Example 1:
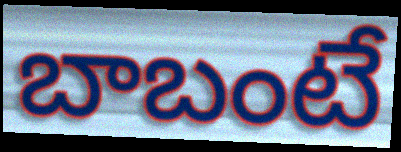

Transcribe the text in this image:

బాబంటే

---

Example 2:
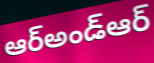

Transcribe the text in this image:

ఆర్అండ్ఆర్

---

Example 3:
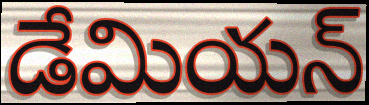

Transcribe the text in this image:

డేమియన్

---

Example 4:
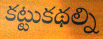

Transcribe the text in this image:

కట్టుకథల్ని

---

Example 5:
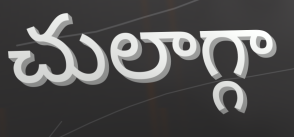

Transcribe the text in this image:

చులాగ్గా